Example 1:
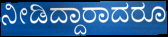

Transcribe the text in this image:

ನೀಡಿದ್ದಾರಾದರೂ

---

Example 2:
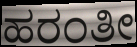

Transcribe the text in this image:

ಹರಂತೀ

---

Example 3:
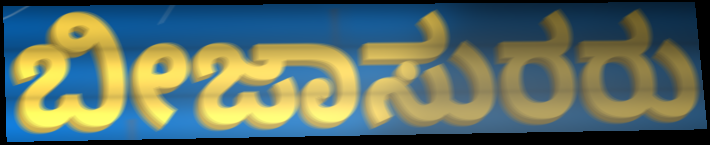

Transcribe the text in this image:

ಬೀಜಾಸುರರು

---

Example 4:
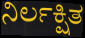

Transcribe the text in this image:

ನಿರ್ಲಕ್ಷಿತ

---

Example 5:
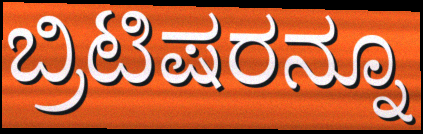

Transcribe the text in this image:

ಬ್ರಿಟಿಷರನ್ನೂ